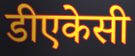
डीएकेसी